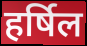
हर्षिल